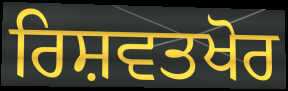
ਰਿਸ਼ਵਤਖੋਰ